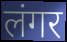
लंगर